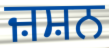
ਜ਼ਸ਼ਨ